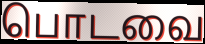
பொடவை